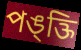
পঙ্‌ক্তি